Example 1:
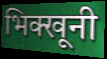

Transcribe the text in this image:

भिक्खूनी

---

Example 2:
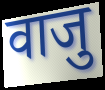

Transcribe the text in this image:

वाजु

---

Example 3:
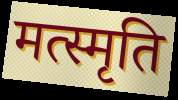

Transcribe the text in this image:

मत्स्मृति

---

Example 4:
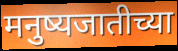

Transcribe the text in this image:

मनुष्यजातीच्या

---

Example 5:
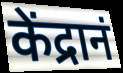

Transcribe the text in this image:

केंद्रानं